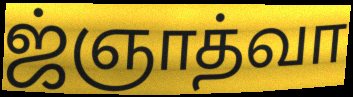
ஜ்ஞாத்வா